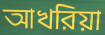
আখরিয়া